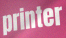
printer